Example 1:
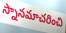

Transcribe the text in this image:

స్నానమాచరించి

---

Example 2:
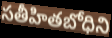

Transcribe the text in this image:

సతీహితబోధిని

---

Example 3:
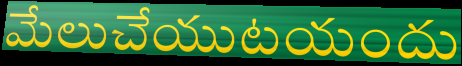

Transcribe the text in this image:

మేలుచేయుటయందు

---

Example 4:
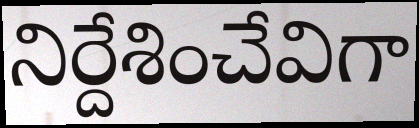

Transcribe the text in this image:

నిర్దేశించేవిగా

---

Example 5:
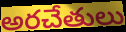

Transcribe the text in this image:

అరచేతులు